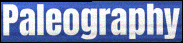
Paleography